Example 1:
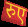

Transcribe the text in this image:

रुए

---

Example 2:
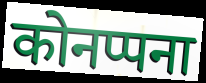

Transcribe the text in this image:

कोनप्पना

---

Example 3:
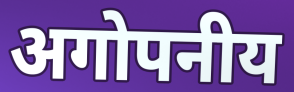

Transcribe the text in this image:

अगोपनीय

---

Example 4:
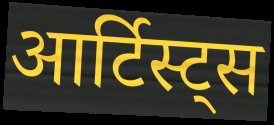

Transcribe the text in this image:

आर्टिस्ट्स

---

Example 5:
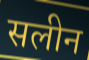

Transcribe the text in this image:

सलीन